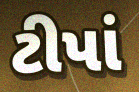
ટીપાં